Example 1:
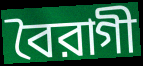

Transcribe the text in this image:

বৈরাগী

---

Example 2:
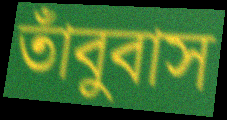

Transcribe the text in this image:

তাঁবুবাস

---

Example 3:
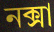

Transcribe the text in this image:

নক্সা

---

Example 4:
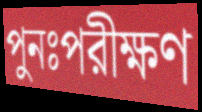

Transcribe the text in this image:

পুনঃপরীক্ষণ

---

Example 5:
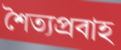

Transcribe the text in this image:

শৈত্যপ্রবাহ